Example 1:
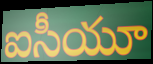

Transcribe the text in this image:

ఐసీయూ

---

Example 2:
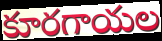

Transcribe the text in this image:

కూరగాయల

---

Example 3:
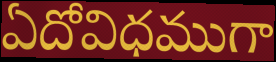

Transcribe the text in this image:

ఏదోవిధముగా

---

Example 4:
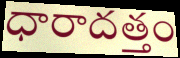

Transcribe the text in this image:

ధారాదత్తం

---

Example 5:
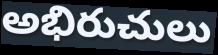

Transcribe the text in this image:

అభిరుచులు